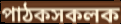
পাঠকসকলক